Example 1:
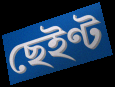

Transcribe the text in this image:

ছেইণ্ট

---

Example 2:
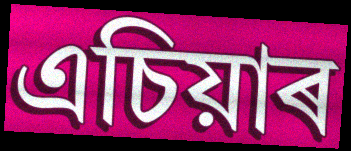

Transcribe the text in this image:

এচিয়াৰ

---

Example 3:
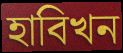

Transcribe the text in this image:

হাবিখন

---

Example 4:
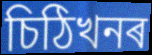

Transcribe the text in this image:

চিঠিখনৰ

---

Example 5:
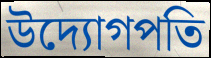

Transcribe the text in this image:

উদ্যোগপতি